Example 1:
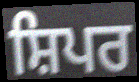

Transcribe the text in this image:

ਸ਼ਿਪਰ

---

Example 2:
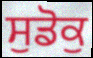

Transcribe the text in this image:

ਸੁਡੋਕੁ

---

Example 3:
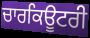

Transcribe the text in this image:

ਚਾਰਕਿਊਟਰੀ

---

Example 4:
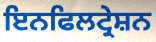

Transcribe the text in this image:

ਇਨਫਿਲਟ੍ਰੇਸ਼ਨ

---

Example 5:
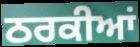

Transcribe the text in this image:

ਠਰਕੀਆਂ